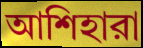
আশিহারা